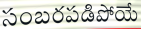
సంబరపడిపోయే